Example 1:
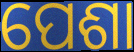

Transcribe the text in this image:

ପେଶା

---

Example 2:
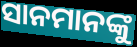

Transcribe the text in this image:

ସାନମାନଙ୍କୁ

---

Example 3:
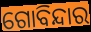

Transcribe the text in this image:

ଗୋବିନ୍ଦାର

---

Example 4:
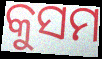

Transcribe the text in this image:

କୁସମ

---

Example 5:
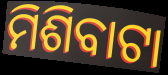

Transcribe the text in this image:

ମିଶିବାଟା